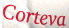
Corteva